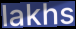
lakhs